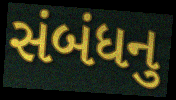
સંબંધનુ